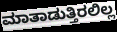
ಮಾತಾಡುತ್ತಿರಲಿಲ್ಲ